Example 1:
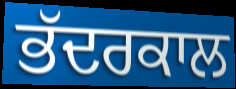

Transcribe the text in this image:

ਭੱਦਰਕਾਲ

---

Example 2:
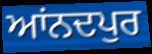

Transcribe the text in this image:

ਆਂਨਦਪੁਰ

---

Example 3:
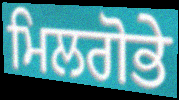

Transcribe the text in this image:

ਮਿਲਗੋਭੇ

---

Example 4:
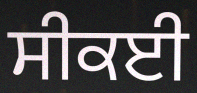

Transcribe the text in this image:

ਸੀਕਈ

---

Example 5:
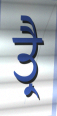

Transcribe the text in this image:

ਤ੍ਰੈ